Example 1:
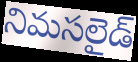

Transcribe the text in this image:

నిమసలైడ్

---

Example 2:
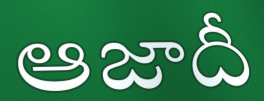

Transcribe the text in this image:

ఆజాదీ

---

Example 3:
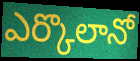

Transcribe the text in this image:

ఎర్కొలానో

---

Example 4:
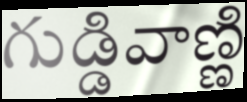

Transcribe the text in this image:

గుడ్డివాణ్ణి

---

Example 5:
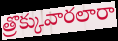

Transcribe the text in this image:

త్రొక్కువారలారా